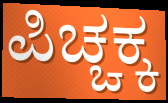
ಪಿಚ್ಚಕ್ಕ